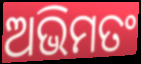
ଅଭିମତଂ